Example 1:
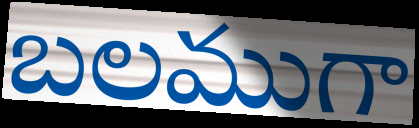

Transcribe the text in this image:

బలముగా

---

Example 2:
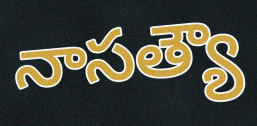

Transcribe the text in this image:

నాసత్యౌ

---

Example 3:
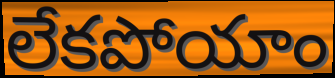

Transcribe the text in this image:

లేకపోయాం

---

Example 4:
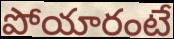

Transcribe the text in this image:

పోయారంటే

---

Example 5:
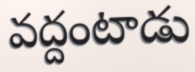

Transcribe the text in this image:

వద్దంటాడు